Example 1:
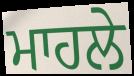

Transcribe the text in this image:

ਮਾਹਲੇ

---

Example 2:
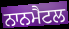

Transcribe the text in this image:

ਨਾਨਮੈਟਲ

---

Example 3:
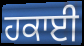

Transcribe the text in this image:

ਹਕਾਈ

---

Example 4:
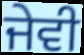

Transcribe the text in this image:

ਜੇਵੀ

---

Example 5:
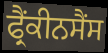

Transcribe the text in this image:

ਫ੍ਰੈਂਕੀਨਸੈਂਸ